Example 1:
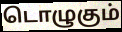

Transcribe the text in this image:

டொழுகும்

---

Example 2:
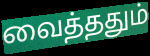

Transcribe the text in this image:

வைத்ததும்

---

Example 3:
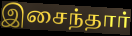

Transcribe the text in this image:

இசைந்தார்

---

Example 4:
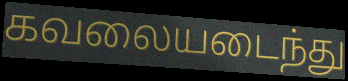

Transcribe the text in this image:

கவலையடைந்து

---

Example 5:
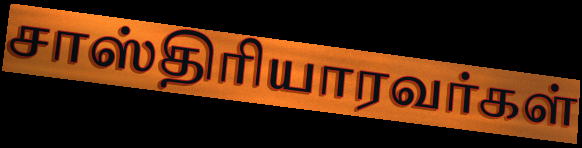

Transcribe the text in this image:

சாஸ்திரியாரவர்கள்